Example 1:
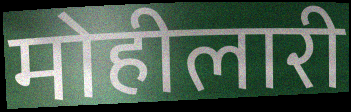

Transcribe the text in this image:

मोहीलारी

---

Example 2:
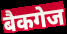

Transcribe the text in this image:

बैकगेज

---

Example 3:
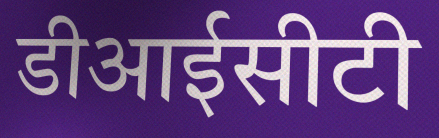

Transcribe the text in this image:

डीआईसीटी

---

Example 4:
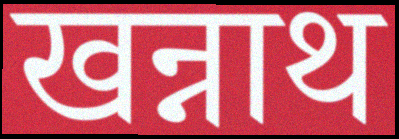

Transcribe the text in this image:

खन्नाथ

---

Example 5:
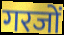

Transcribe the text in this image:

गरजों